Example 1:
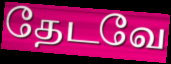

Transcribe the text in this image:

தேடவே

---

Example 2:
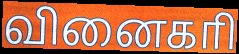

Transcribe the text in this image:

வினைகரி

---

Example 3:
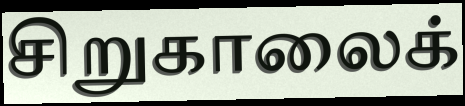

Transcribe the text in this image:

சிறுகாலைக்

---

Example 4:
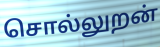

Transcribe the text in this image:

சொல்லுறன்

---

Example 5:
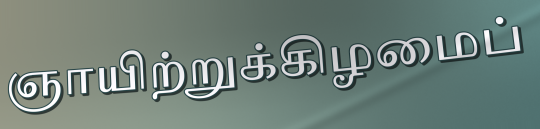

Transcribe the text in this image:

ஞாயிற்றுக்கிழமைப்